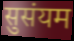
सुसंयम